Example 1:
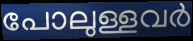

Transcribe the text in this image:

പോലുള്ളവർ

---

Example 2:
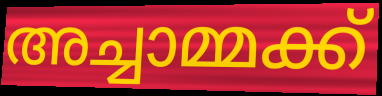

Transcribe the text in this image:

അച്ചാമ്മക്ക്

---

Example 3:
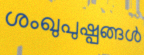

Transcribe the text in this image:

ശംഖുപുഷ്പങ്ങൾ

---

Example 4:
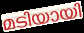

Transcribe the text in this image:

മടിയായി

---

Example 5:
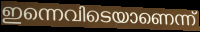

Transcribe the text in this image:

ഇന്നെവിടെയാണെന്ന്